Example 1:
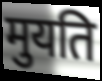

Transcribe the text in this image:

मुयति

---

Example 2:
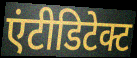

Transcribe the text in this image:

एंटीडिटेक्ट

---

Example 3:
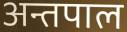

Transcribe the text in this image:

अन्तपाल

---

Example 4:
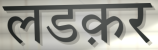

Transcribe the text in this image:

लडक़र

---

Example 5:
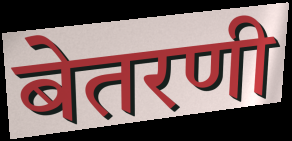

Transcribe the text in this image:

बेतरणी